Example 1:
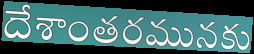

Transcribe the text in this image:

దేశాంతరమునకు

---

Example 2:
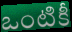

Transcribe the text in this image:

ఒంటికీ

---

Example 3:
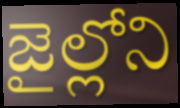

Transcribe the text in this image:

జైల్లోని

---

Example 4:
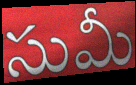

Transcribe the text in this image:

సుమీ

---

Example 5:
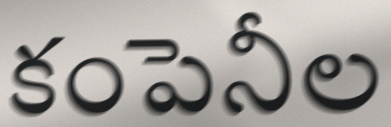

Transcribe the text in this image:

కంపెనీల